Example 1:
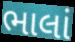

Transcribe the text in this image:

ભાલાં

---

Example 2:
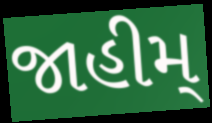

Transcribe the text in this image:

જાહીમ્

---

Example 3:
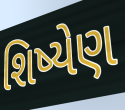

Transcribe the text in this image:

શિષ્યેણ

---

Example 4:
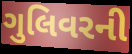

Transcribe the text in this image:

ગુલિવરની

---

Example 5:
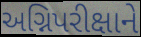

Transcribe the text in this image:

અગ્નિપરીક્ષાને